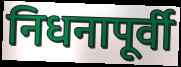
निधनापूर्वी